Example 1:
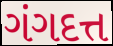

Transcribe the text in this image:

ગંગદત્ત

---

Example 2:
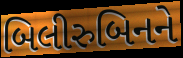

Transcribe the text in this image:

બિલીરુબિનને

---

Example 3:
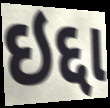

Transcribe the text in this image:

ઇદ્દા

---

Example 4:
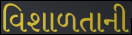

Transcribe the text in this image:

વિશાળતાની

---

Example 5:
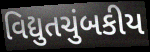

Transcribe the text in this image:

વિદ્યુતચુંબકીય